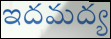
ఇదమద్య